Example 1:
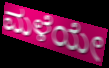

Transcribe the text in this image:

ಮಳೆಯೇ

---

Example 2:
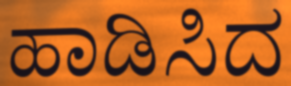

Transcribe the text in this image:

ಹಾಡಿಸಿದ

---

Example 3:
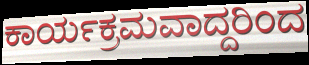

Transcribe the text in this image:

ಕಾರ್ಯಕ್ರಮವಾದ್ದರಿಂದ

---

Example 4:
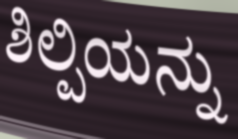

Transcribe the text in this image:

ಶಿಲ್ಪಿಯನ್ನು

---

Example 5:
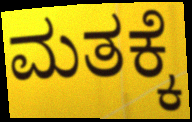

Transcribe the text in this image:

ಮತಕ್ಕೆ